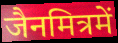
जैनमित्रमें